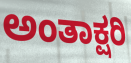
ಅಂತಾಕ್ಷರಿ